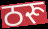
ठरू